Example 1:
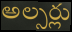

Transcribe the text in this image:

అల్సర్లు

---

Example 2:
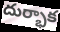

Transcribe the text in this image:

దుర్భాక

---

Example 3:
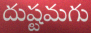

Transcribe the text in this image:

దుష్టమగు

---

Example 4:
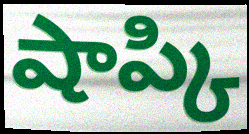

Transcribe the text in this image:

షాప్కి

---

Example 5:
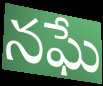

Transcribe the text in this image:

నఘే